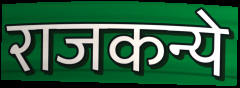
राजकन्ये